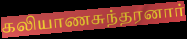
கலியாணசுந்தரனார்